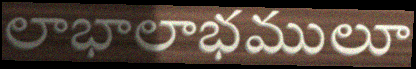
లాభాలాభములూ